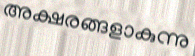
അക്ഷരങ്ങളാകുന്നു